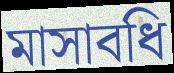
মাসাবধি